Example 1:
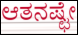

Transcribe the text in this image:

ಆತನಷ್ಟೇ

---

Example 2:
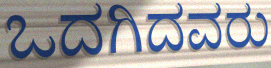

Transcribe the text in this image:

ಒದಗಿದವರು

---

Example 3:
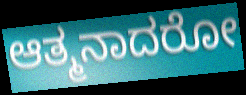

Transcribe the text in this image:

ಆತ್ಮನಾದರೋ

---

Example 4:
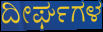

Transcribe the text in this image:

ದೀರ್ಘಗಳ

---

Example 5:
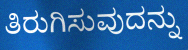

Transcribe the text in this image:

ತಿರುಗಿಸುವುದನ್ನು